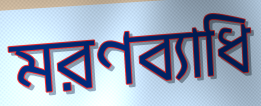
মরণব্যাধি